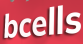
bcells